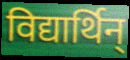
विद्यार्थिन्